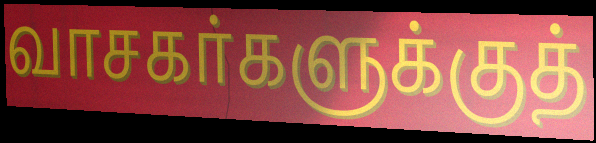
வாசகர்களுக்குத்